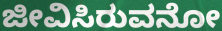
ಜೀವಿಸಿರುವನೋ